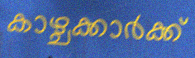
കാഴ്ചക്കാർക്ക്